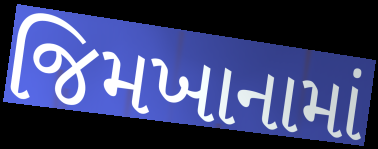
જિમખાનામાં